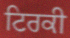
ਟਿਰਕੀ